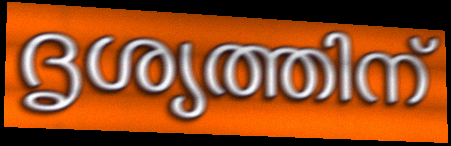
ദൃശ്യത്തിന്